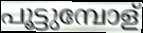
പൂട്ടുമ്പോള്